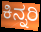
ಕಿನ್ನರಿ